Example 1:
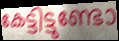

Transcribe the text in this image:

കേട്ടിട്ടുണ്ടോ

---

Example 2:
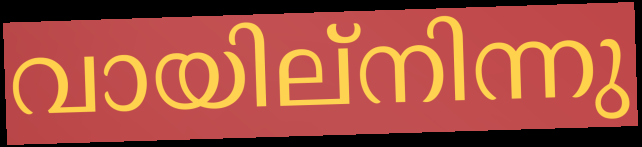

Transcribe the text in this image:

വായില്നിന്നു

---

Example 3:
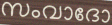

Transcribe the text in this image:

സംവാദോ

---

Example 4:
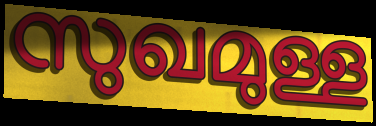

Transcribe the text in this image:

സുഖമുള്ള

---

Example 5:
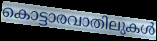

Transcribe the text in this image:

കൊട്ടാരവാതിലുകൾ